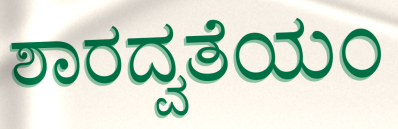
ಶಾರದ್ವತೆಯಂ